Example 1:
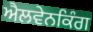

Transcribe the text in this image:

ਐਲਵੇਨਕਿੰਗ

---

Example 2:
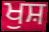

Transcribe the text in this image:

ਖੁਸ਼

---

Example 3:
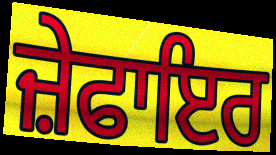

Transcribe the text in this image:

ਜ਼ੇਫਾਇਰ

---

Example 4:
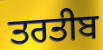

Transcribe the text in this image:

ਤਰਤੀਬ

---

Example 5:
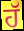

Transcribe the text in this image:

ਹੱ